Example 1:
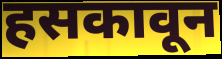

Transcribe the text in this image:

हसकावून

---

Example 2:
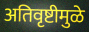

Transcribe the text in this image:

अतिवृष्टीमुळे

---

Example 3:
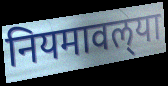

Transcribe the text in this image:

नियमावल्या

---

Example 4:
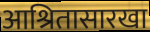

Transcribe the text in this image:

आश्रितासारखा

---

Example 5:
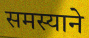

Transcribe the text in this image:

समस्याने